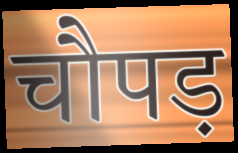
चौपड़